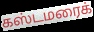
கஸ்டமரைக்